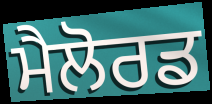
ਮੈਲੋਰਡ